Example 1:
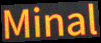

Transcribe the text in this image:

Minal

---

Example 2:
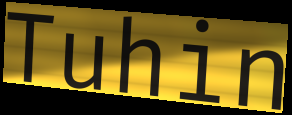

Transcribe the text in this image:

Tuhin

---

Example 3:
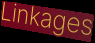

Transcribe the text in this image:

Linkages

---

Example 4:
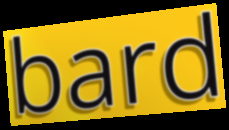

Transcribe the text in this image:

bard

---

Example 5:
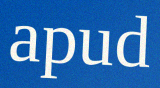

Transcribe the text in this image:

apud